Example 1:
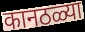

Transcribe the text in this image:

कानठळ्या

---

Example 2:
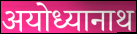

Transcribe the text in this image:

अयोध्यानाथ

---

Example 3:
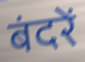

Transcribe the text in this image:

बंदरें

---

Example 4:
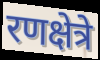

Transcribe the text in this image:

रणक्षेत्रे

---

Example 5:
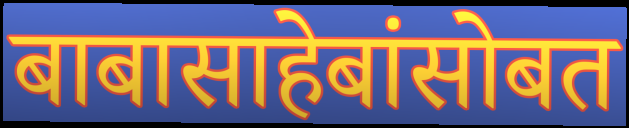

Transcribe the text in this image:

बाबासाहेबांसोबत